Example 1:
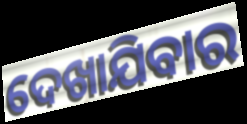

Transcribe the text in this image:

ଦେଖାଯିବାର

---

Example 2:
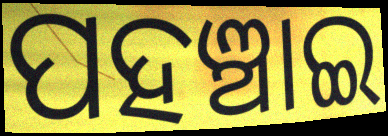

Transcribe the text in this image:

ପହଞ୍ଚାଇ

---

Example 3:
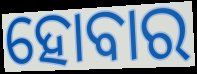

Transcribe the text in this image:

ହୋବାର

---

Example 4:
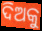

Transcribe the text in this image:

ଦିଅକୁ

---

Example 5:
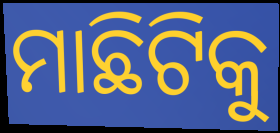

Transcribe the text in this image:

ମାଛିଟିକୁ